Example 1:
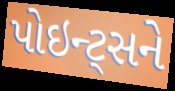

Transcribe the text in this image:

પોઇન્ટ્સને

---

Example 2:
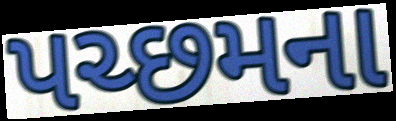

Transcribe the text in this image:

પચ્છમના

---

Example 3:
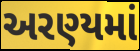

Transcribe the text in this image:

અરણ્યમાં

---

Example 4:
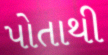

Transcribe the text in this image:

પોતાથી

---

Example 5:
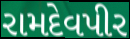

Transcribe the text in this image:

રામદેવપીર